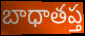
బాధాతప్త